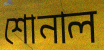
শোনাল